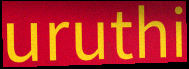
uruthi